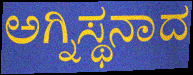
ಅಗ್ನಿಸ್ಥನಾದ